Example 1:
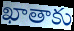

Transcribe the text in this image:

ఖాతాకు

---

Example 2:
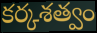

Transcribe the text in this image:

కర్కశత్వం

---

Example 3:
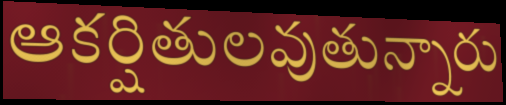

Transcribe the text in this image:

ఆకర్షితులవుతున్నారు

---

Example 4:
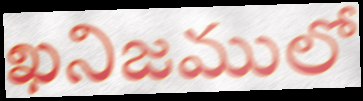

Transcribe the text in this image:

ఖనిజములో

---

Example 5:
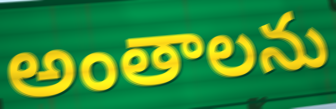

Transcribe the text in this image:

అంతాలను